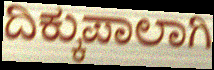
ದಿಕ್ಕುಪಾಲಾಗಿ